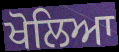
ਖੋਲਿਆ